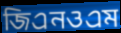
জিএনওএম